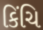
કિંચિ